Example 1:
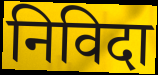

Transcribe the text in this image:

निविदा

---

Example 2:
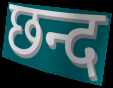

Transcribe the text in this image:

छन्‍द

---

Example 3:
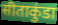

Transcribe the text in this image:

सीताकुंडा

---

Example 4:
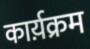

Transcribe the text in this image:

कार्य़क्रम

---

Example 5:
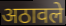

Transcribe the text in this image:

अठावले